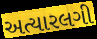
અત્યારલગી